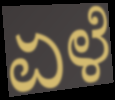
ಏಳೆ